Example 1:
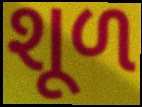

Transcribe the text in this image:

શૂળ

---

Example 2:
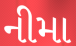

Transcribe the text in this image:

નીમા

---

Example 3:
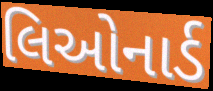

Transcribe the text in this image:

લિઓનાર્ડ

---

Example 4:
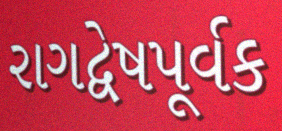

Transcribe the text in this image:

રાગદ્વેષપૂર્વક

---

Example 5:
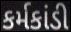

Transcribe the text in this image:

કર્મકાંડી